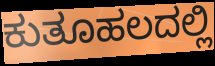
ಕುತೂಹಲದಲ್ಲಿ